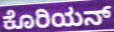
ಕೊರಿಯನ್